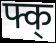
फ्क्